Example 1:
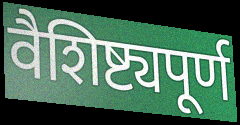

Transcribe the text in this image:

वैशिष्ट्यपूर्ण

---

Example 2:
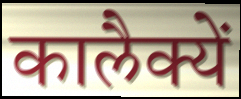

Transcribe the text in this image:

कालैक्यें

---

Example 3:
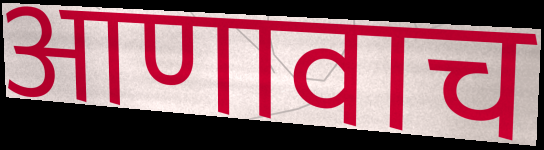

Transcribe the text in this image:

आणावाच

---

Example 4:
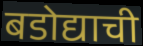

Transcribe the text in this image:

बडोद्याची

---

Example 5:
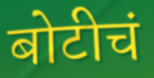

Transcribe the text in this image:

बोटीचं